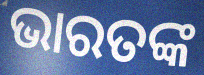
ଭାରତଙ୍କ